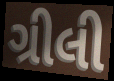
ગ્રીલી